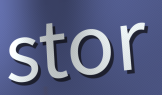
stor